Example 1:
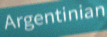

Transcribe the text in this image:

Argentinian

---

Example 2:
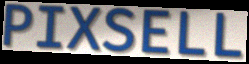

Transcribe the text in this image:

PIXSELL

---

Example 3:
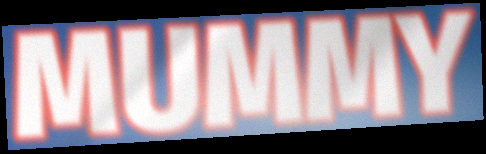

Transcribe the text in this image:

MUMMY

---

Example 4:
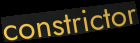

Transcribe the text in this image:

constrictor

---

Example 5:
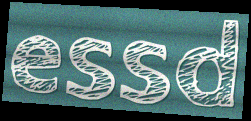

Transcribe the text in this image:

essd